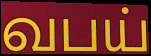
வபய்